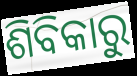
ଶିବିକାରୁ